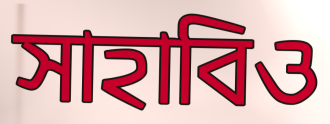
সাহাবিও